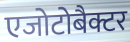
एजोटोबैक्टर